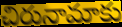
చిరునామాకు